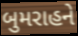
બુમરાહને